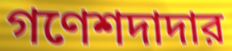
গণেশদাদার